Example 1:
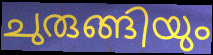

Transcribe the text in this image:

ചുരുങ്ങിയും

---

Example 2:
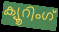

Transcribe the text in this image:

ക്യൂറിംഗ്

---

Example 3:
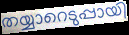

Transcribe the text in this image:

തയ്യാറെടുപ്പായി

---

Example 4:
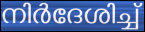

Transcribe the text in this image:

നിർദേശിച്ച്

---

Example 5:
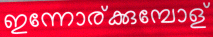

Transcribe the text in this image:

ഇന്നോര്ക്കുമ്പോള്